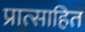
प्रात्साहित